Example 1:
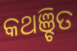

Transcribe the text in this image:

କଥଞ୍ଚିତ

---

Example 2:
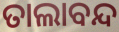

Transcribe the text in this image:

ତାଲାବନ୍ଦ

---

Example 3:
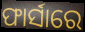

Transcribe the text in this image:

ଫାର୍ସାରେ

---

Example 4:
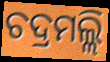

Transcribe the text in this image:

ଚଦ୍ରମଲ୍ଲି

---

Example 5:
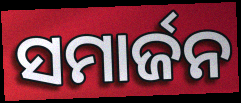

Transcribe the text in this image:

ସମାର୍ଜନ